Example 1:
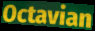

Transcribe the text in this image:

Octavian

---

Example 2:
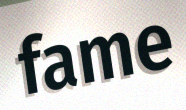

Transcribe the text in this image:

fame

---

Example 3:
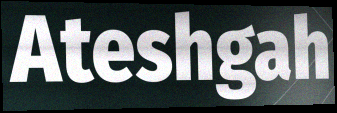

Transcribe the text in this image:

Ateshgah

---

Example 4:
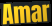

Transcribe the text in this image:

Amar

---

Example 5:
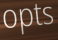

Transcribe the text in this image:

opts